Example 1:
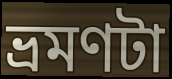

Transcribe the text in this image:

ভ্রমণটা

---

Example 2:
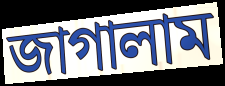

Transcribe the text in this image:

জাগালাম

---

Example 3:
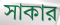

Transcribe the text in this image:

সাকার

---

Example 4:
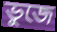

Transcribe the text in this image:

ভুজে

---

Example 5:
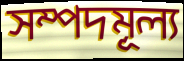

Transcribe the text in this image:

সম্পদমূল্য